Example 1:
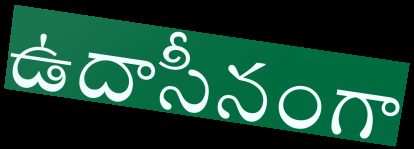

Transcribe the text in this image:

ఉదాసీనంగా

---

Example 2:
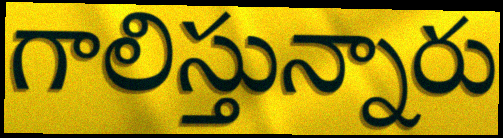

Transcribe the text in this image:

గాలిస్తున్నారు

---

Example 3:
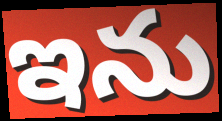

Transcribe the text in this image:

ఇను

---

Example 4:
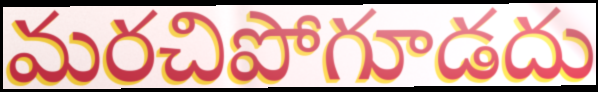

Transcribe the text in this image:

మరచిపోగూడదు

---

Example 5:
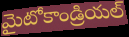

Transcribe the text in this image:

మైటోకాండ్రియల్